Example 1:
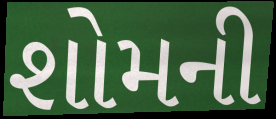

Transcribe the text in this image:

શોમની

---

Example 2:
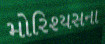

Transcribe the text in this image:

મોરિશ્યસના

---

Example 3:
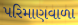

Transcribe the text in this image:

પરિમાણવાળા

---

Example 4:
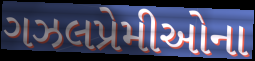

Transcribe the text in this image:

ગઝલપ્રેમીઓના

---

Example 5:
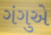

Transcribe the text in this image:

ગંગુએ